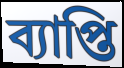
ব্য়াপ্তি